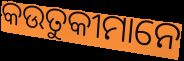
କଉତୁକୀମାନେ